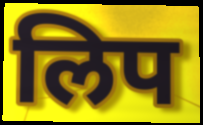
लिप